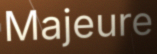
Majeure